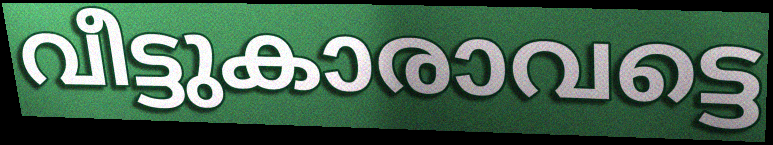
വീട്ടുകാരാവട്ടെ